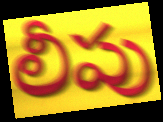
లీపు